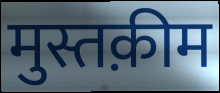
मुस्तक़ीम